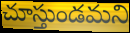
చూస్తుండమని